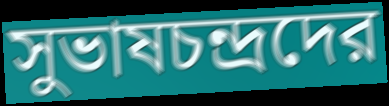
সুভাষচন্দ্রদের